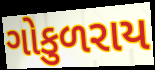
ગોકુળરાય